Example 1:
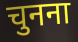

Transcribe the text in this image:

चुनना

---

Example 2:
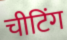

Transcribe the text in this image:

चीटिंग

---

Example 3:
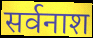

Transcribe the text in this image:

सर्वनाश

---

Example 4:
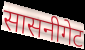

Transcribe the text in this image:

सासनीगेट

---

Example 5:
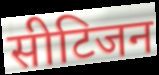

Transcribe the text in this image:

सीटिजन